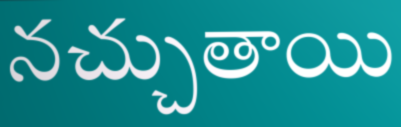
నచ్చుతాయి